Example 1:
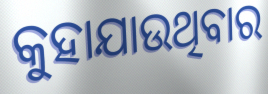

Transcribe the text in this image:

କୁହାଯାଉଥିବାର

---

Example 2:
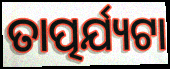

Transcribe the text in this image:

ତାତ୍ପର୍ଯ୍ୟଟା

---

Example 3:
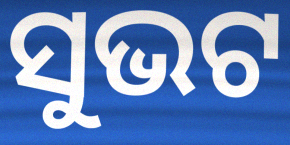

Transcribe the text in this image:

ସୁଭଟ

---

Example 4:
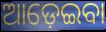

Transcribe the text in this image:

ଆଡ଼େଇବା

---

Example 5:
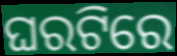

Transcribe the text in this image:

ଘରଟିରେ